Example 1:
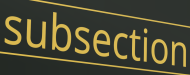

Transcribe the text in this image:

subsection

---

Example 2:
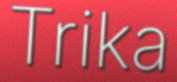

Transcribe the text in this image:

Trika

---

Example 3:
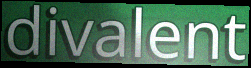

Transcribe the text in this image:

divalent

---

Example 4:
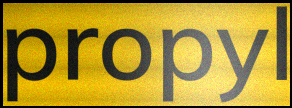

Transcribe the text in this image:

propyl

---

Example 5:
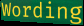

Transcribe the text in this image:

Wording